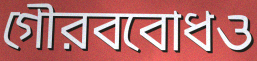
গৌরববোধও